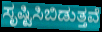
ಸೃಷ್ಟಿಸಿಬಿಡುತ್ತವೆ